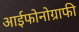
आईफोनोग्राफी